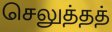
செலுத்தத்